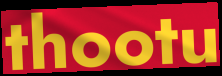
thootu